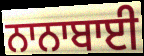
ਨਾਨਾਬਾਈ